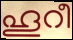
ഹൂറീ